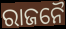
ରାଜନୈ